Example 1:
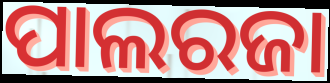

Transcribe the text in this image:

ପାଲରଜା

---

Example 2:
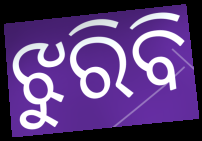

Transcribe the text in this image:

ଝୁରିବି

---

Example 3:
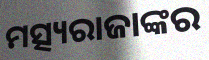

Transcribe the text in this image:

ମତ୍ସ୍ୟରାଜାଙ୍କର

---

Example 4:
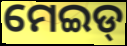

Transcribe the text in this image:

ମେଇଡ୍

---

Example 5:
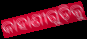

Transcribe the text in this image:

କାହାଣୀଗୁଡ଼ିକୁ